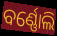
ବର୍ଣ୍ଣୋଲି